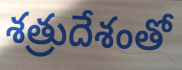
శత్రుదేశంతో